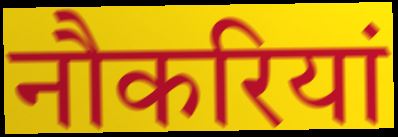
नौकरियां